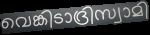
വെങ്കിടാദ്രിസ്വാമി